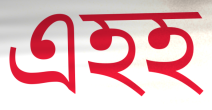
এহহ